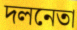
দলনেতা